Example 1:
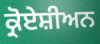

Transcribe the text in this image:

ਕ੍ਰੋਏਸ਼ੀਅਨ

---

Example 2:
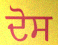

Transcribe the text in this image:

ਦੋਸ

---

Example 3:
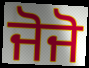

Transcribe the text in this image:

ਜੋਜੋ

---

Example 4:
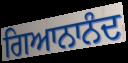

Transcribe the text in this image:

ਗਿਆਨਾਨੰਦ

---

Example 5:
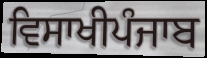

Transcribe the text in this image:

ਵਿਸਾਖੀਪੰਜਾਬ